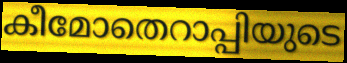
കീമോതെറാപ്പിയുടെ